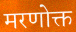
मरणोक्त